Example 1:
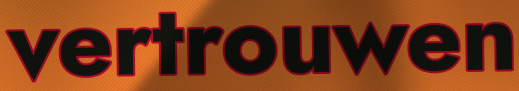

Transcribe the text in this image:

vertrouwen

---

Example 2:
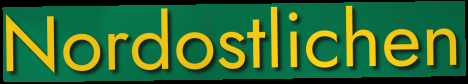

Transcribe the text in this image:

Nordostlichen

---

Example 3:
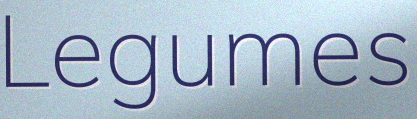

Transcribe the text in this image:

Legumes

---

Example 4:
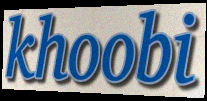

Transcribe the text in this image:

khoobi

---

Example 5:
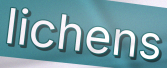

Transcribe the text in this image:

lichens